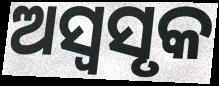
ଅସ୍ୱସୃକ